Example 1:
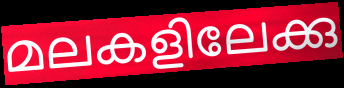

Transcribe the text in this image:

മലകളിലേക്കു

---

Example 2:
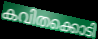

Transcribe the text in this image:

കവിതക്കൊടി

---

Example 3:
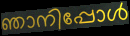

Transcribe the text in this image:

ഞാനിപ്പോൾ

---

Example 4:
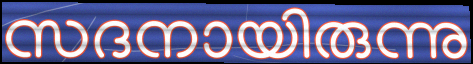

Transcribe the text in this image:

സദനായിരുന്നു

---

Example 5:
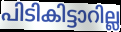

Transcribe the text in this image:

പിടികിട്ടാറില്ല